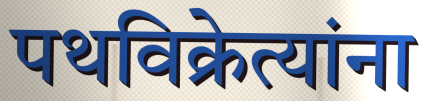
पथविक्रेत्यांना